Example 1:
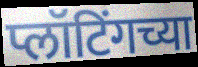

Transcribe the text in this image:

प्लॉटिंगच्या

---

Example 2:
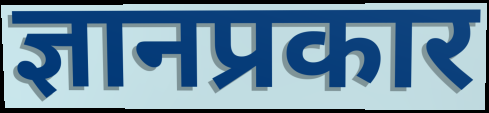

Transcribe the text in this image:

ज्ञानप्रकार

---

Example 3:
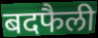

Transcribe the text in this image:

बदफैली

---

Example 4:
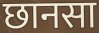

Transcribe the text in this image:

छानसा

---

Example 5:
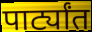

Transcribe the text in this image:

पार्ट्यांत